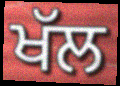
ਖੱਲ